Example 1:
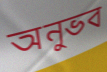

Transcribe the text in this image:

অনুভব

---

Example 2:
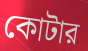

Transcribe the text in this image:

কোটার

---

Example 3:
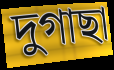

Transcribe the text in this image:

দুগাছা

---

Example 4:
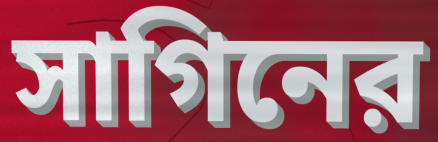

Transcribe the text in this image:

সাগিনের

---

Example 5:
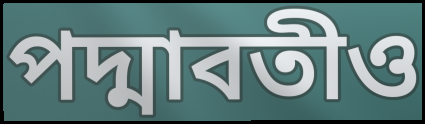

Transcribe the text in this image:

পদ্মাবতীও